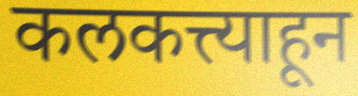
कलकत्त्याहून